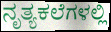
ನೃತ್ಯಕಲೆಗಳಲ್ಲಿ